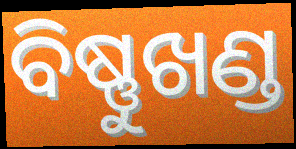
ବିଷ୍ଣୁଖଣ୍ଡ